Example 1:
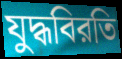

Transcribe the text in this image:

যুদ্ধবিরতি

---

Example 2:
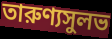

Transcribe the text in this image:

তারুণ্যসুলভ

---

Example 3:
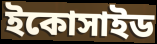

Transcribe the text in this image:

ইকোসাইড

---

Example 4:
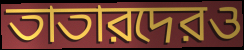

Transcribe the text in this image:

তাতারদেরও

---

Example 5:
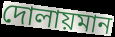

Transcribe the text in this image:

দোলায়মান